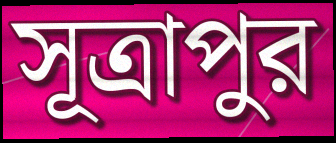
সূত্রাপুর